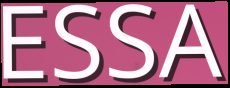
ESSA